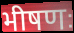
भीषणः